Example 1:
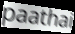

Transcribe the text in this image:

paathai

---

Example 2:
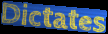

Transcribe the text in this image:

Dictates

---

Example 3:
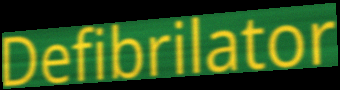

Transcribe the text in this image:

Defibrilator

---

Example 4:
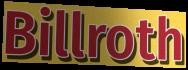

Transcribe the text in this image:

Billroth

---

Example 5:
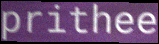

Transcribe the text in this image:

prithee